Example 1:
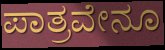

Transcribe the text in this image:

ಪಾತ್ರವೇನೂ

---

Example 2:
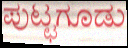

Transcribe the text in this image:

ಪುಟ್ಟಗೂಡು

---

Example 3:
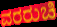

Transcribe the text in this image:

ವರರುಚಿ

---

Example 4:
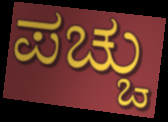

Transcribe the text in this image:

ಪಚ್ಚು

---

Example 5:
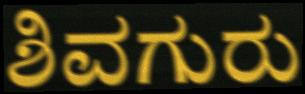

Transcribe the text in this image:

ಶಿವಗುರು